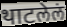
थाटलेलं